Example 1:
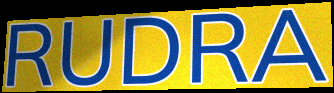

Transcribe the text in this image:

RUDRA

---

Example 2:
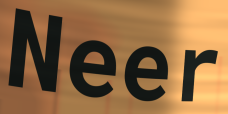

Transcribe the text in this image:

Neer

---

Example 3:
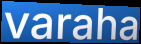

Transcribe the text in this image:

varaha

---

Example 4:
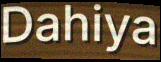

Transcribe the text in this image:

Dahiya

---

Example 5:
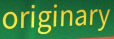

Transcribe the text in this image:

originary